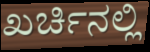
ಖರ್ಚಿನಲ್ಲಿ